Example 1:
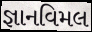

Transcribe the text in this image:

જ્ઞાનવિમલ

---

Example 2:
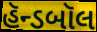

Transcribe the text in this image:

હૅન્ડબૉલ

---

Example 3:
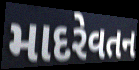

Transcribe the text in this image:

માદરેવતન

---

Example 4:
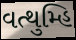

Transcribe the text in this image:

વત્થુમ્હિ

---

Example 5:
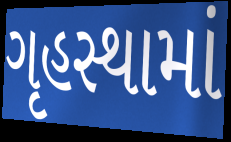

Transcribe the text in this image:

ગૃહસ્થામાં